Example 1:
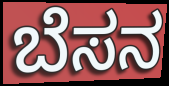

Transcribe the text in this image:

ಬೆಸನ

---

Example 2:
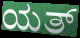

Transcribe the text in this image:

ಯತ್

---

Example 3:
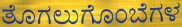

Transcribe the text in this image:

ತೊಗಲುಗೊಂಬೆಗಳ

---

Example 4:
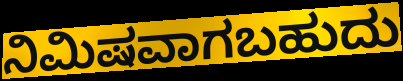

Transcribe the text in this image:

ನಿಮಿಷವಾಗಬಹುದು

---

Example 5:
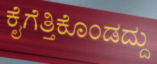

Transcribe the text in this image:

ಕೈಗೆತ್ತಿಕೊಂಡದ್ದು